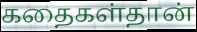
கதைகள்தான்